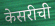
केसरीची